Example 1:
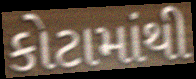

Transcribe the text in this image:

કોટામાંથી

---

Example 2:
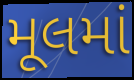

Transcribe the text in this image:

મૂલમાં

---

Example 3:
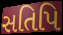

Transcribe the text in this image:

સતિપિ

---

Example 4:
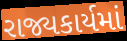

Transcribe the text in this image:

રાજ્યકાર્યમાં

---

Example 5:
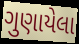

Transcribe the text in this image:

ગુણાયેલા